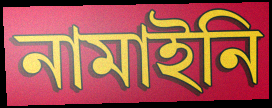
নামাইনি